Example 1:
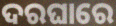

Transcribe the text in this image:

ଦରଘାରେ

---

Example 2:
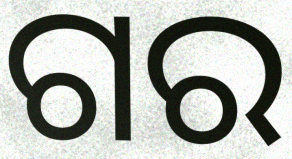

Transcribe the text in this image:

ଗର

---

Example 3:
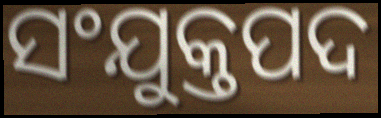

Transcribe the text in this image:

ସଂଯୁକ୍ତପଦ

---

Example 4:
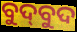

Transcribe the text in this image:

ବୁଦ୍‌ବୁଦ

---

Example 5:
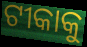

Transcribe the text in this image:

ଟୀକାକୁ